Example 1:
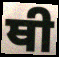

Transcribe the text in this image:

ਥੀ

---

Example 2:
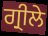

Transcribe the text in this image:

ਗ੍ਰੀਲੇ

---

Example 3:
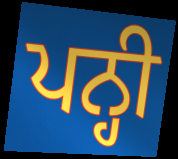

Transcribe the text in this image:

ਪਨ੍ਹੀ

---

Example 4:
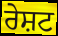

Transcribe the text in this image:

ਰੇਸ਼ਟ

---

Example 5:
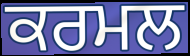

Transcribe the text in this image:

ਕਰਮਲ